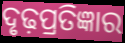
ଦୃଢ଼ପ୍ରତିଜ୍ଞାର